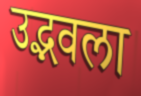
उद्भवला